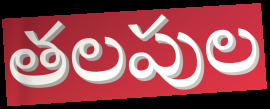
తలపుల